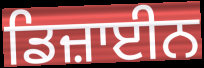
ਡਿਜ਼ਾਈਨ